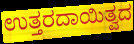
ಉತ್ತರದಾಯಿತ್ವದ